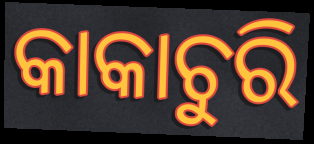
କାକାଚୁରି